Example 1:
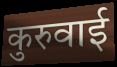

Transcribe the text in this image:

कुरुवाई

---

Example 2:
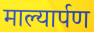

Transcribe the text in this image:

माल्यार्पण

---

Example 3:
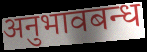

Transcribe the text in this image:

अनुभावबन्ध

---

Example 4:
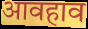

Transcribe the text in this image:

आवहाव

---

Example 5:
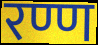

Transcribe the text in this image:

रण्ण